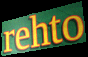
rehto